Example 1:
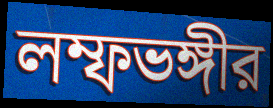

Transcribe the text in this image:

লম্ফভঙ্গীর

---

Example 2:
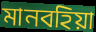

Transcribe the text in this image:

মানবহিয়া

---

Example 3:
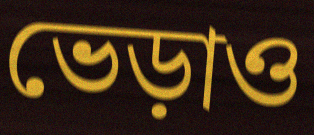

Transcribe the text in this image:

ভেড়াও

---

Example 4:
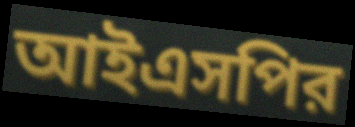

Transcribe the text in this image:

আইএসপির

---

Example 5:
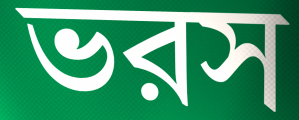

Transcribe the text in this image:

ভরস